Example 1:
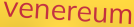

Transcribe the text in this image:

venereum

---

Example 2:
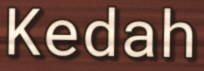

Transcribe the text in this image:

Kedah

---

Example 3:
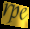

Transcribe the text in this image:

rpe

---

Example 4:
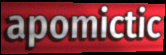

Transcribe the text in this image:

apomictic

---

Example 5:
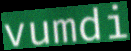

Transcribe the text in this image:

vumdi